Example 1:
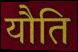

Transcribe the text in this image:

यौति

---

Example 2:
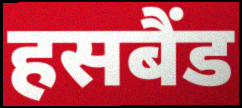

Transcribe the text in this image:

हसबैंड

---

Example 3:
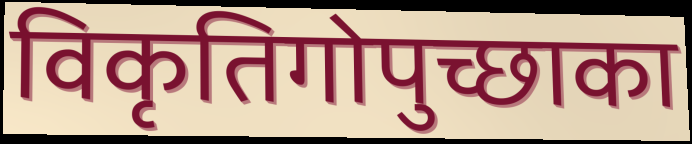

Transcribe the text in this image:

विकृतिगोपुच्छाका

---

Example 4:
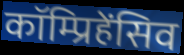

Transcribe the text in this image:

कॉम्प्रिहेंसिव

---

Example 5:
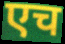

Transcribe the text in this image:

एच